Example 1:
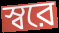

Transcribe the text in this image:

স্বরে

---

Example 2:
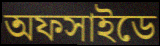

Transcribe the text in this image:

অফসাইডে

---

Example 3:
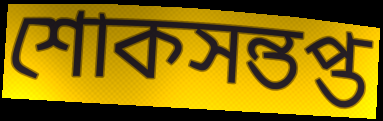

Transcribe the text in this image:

শোকসন্তপ্ত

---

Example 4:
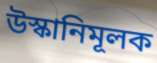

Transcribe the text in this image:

উস্কানিমূলক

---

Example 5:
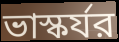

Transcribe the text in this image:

ভাস্কর্যর